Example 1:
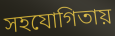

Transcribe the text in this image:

সহযোগিতায়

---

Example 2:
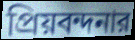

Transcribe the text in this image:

প্রিয়বন্দনার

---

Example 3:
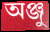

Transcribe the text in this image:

অঞ্জু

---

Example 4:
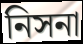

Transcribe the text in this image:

নিসনা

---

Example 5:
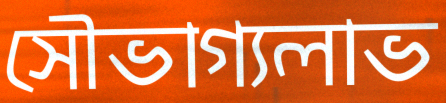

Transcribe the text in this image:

সৌভাগ্যলাভ